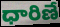
ధారిణే